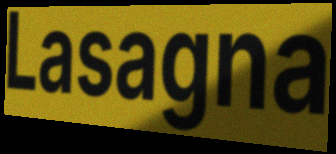
Lasagna